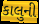
કાલુની